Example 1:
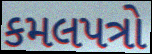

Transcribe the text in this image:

કમલપત્રો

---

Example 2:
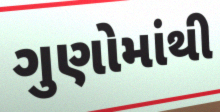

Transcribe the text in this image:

ગુણોમાંથી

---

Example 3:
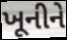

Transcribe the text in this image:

ખૂનીને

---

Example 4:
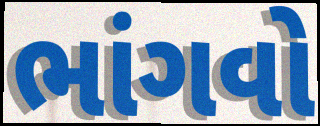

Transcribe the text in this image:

ભાંગવો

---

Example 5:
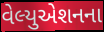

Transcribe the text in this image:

વેલ્યુએશનના